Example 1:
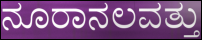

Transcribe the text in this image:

ನೂರಾನಲವತ್ತು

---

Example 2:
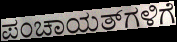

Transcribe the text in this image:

ಪಂಚಾಯತ್‌ಗಳಿಗೆ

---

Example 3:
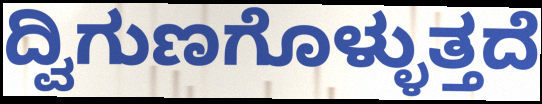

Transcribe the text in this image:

ದ್ವಿಗುಣಗೊಳ್ಳುತ್ತದೆ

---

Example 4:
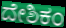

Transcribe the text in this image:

ದೇಶಿಕಂ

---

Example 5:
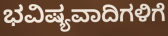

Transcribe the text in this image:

ಭವಿಷ್ಯವಾದಿಗಳಿಗೆ